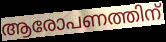
ആരോപണത്തിന്